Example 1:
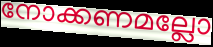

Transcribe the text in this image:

നോക്കണമല്ലോ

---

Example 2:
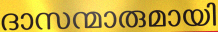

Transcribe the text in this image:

ദാസന്മാരുമായി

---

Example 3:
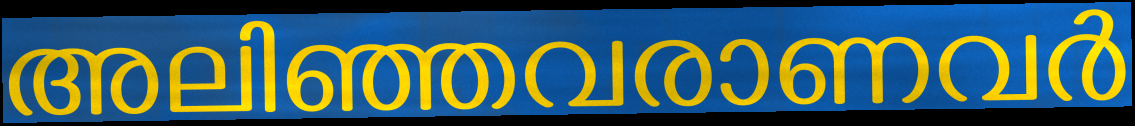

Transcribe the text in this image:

അലിഞ്ഞവരാണവർ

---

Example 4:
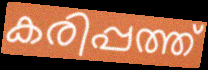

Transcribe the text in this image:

കരിപ്പത്ത്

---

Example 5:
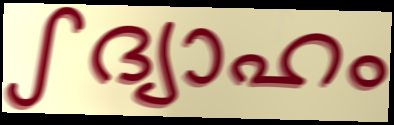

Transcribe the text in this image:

ഽദ്യാഹം